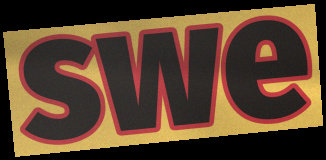
swe